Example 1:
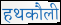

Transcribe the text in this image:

हथकौली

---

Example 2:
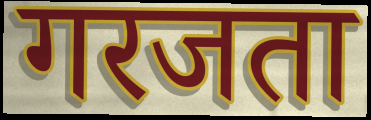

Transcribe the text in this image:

गरजता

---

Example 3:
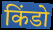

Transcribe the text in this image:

किंडो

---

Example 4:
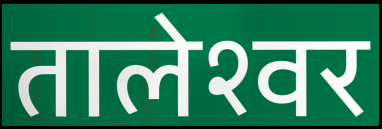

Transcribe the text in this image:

तालेश्वर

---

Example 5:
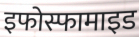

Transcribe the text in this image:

इफोस्फामाइड